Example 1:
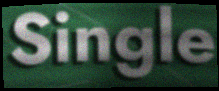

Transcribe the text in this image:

Single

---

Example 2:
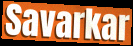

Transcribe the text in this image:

Savarkar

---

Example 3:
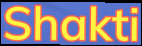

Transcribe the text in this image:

Shakti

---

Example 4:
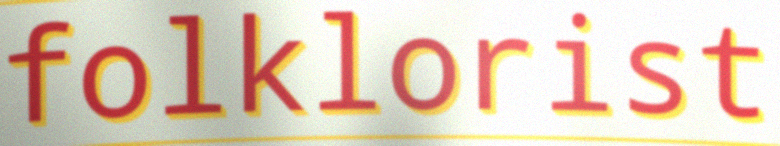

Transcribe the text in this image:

folklorist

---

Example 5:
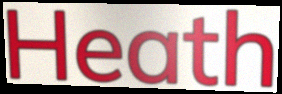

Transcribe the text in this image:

Heath